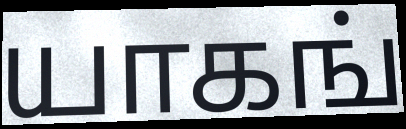
யாகங்